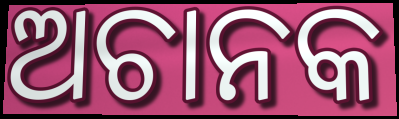
ଅଚାନକ